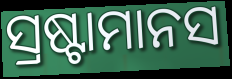
ସ୍ରଷ୍ଟାମାନସ